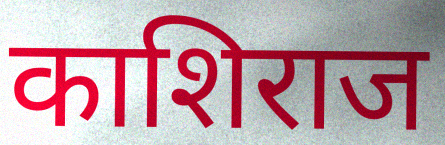
काशिराज